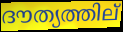
ദൗത്യത്തില്